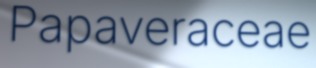
Papaveraceae